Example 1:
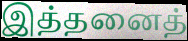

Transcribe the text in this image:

இத்தனைத்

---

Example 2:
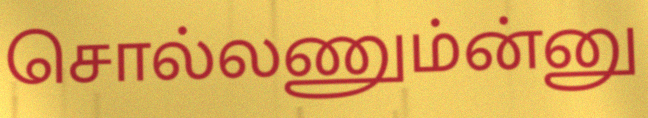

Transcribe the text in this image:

சொல்லணும்ன்னு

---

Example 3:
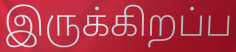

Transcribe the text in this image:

இருக்கிறப்ப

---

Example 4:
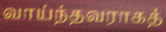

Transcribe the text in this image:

வாய்ந்தவராகத்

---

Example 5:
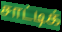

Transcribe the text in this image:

சாட்டிக்